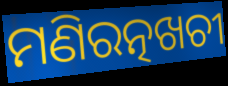
ମଣିରତ୍ନଖଚୀ